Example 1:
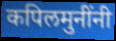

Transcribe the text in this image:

कपिलमुनींनी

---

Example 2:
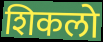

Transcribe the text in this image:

शिकलो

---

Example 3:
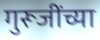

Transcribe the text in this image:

गुरूजींच्या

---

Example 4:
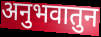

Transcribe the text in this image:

अनुभवातुन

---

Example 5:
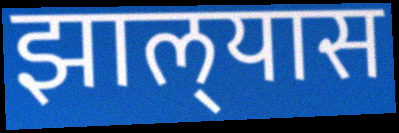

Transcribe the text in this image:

झाल्यास